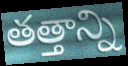
తత్తాన్ని